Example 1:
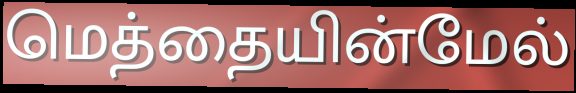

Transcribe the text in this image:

மெத்தையின்மேல்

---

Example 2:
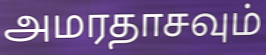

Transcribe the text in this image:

அமரதாசவும்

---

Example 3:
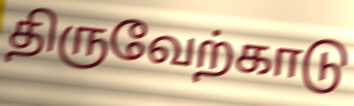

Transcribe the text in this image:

திருவேற்காடு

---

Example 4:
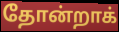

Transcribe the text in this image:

தோன்றாக்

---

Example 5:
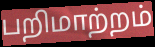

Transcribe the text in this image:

பறிமாற்றம்